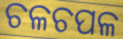
ଚଳଚପଳ